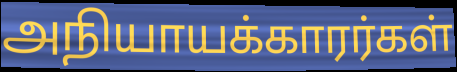
அநியாயக்காரர்கள்